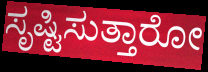
ಸೃಷ್ಟಿಸುತ್ತಾರೋ